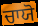
ਚਾਯੋ